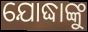
ଯୋଦ୍ଧାଙ୍କୁ